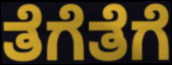
ತೆಗೆತೆಗೆ